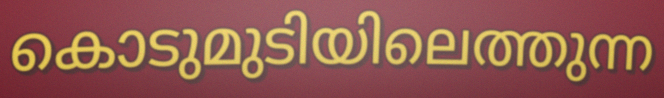
കൊടുമുടിയിലെത്തുന്ന